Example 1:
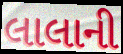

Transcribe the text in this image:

લાલાની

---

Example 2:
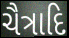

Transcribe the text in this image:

ચૈત્રાદિ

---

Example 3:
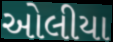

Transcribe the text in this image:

ઓલીયા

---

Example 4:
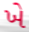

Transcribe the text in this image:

ખે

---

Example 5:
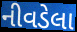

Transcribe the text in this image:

નીવડેલા